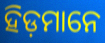
ହିଡ଼ମାନେ